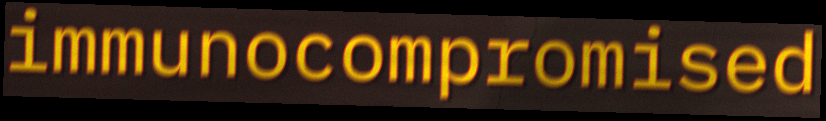
immunocompromised